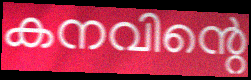
കനവിന്റെ